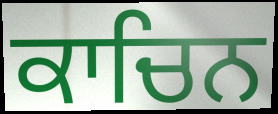
ਕਾਚਿਨ